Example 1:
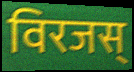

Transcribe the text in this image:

विरजस्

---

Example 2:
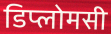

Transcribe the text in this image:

डिप्लोमसी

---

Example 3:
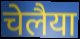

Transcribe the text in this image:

चेलैया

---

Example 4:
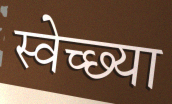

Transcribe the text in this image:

स्वेच्छ्या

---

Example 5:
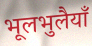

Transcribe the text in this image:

भूलभुलैयाँ